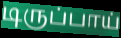
டிருப்பாய்